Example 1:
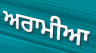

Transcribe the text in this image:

ਅਰਾਮੀਆ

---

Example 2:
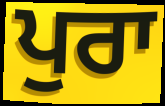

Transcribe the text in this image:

ਪੁਰਾ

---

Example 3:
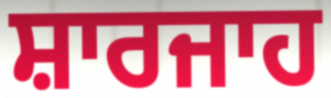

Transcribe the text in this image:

ਸ਼ਾਰਜਾਹ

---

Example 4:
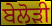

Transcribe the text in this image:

ਬੇਲੋੜੀ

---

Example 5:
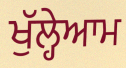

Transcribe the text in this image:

ਖੁੱਲ੍ਹੇਆਮ